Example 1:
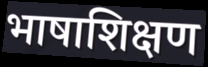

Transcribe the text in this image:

भाषाशिक्षण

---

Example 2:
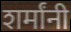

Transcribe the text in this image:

शर्मांनी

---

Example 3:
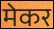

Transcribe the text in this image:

मेकर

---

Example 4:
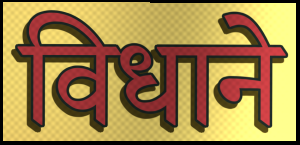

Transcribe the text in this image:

विधाने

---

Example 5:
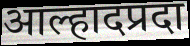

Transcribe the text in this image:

आल्हादप्रदा